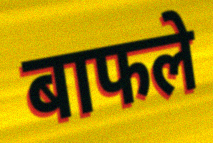
बाफले